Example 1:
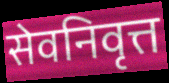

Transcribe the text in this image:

सेवनिवृत्त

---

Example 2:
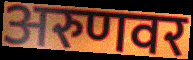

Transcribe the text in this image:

अरुणवर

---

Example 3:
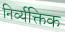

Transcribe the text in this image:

निर्व्यक्तिक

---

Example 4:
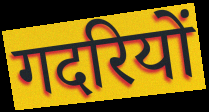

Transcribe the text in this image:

गदरियों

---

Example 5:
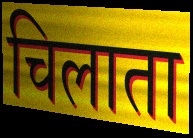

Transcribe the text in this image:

चिलाता